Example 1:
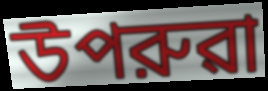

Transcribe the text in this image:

উপৰুৱা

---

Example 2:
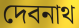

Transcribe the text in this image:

দেবনাথ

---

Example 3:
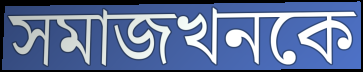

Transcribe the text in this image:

সমাজখনকে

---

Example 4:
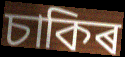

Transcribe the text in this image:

চাকিৰ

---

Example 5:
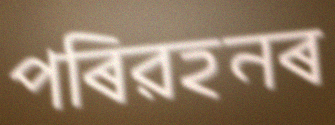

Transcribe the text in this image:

পৰিৱহনৰ